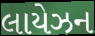
લાયેઝન